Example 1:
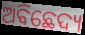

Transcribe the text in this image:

ଅବିଛେଦ୍ୟ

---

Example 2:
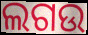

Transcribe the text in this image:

ଲଗଉ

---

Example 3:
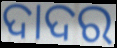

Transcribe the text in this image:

ଦାଦର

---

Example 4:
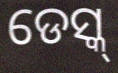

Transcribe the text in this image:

ଡେସ୍କ୍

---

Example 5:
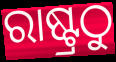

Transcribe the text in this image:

ରାଷ୍ଟ୍ରଠୁ